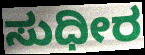
ಸುಧೀರ